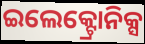
ଇଲେକ୍ଟ୍ରୋନିକ୍ସ